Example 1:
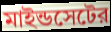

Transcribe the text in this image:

মাইন্ডসেটের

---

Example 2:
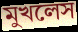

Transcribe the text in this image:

মুখলেস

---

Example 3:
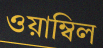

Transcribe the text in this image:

ওয়াম্বিল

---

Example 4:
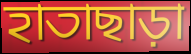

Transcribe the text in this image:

হাতাছাড়া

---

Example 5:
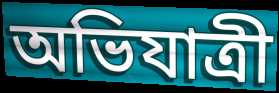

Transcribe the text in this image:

অভিযাত্রী